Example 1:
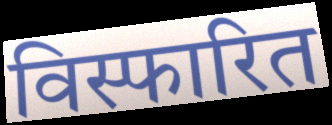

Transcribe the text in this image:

विस्फारित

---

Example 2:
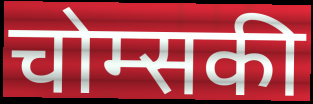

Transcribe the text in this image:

चोम्सकी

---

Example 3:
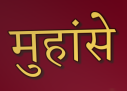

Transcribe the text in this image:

मुहांसे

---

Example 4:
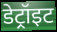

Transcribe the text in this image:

डेट्रॉइट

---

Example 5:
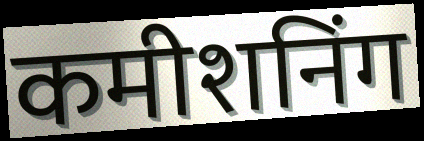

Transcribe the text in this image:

कमीशनिंग